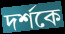
দৰ্শকে